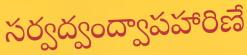
సర్వద్వంద్వాపహారిణే